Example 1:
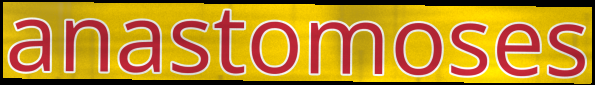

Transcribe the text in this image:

anastomoses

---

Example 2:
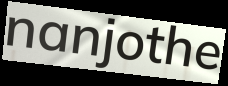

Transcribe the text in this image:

nanjothe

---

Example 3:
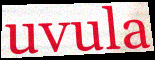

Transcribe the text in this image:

uvula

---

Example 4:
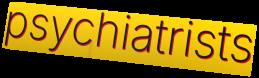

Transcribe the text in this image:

psychiatrists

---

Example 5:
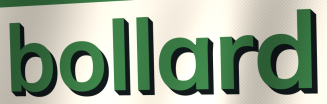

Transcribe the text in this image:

bollard